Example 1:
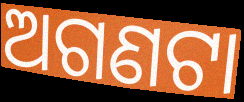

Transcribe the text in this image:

ଅଗଣଟା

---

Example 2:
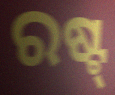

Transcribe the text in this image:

ରଷ୍ଟ୍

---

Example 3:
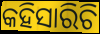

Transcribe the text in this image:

କହିସାରିଚି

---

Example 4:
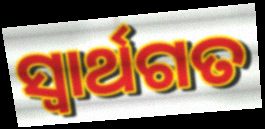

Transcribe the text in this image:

ସ୍ୱାର୍ଥଗତ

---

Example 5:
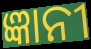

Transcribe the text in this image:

ଜ୍ଞାନୀ